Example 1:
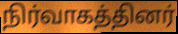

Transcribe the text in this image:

நிர்வாகத்தினர்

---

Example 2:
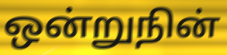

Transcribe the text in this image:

ஒன்றுநின்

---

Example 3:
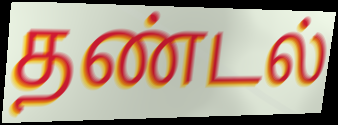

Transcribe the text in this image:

தண்டல்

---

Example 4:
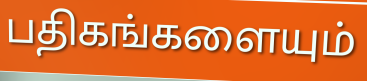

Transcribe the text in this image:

பதிகங்களையும்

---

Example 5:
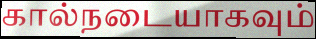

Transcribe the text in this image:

கால்நடையாகவும்